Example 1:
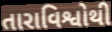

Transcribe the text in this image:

તારાવિશ્વોથી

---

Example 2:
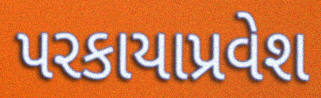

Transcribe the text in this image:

પરકાયાપ્રવેશ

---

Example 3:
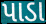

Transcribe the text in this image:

પાડા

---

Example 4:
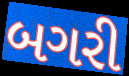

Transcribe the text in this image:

બગરી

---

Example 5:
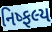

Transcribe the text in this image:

નિષ્ફલ્ય